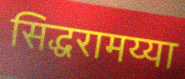
सिद्धरामय्या